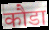
कौडा